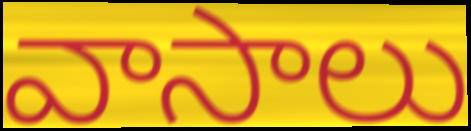
వాసాలు